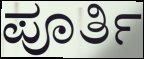
ಪೂರ್ತಿ